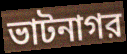
ভাটনাগর